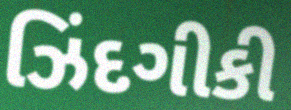
ઝિંદગીકી